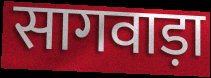
सागवाड़ा